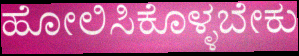
ಹೋಲಿಸಿಕೊಳ್ಳಬೇಕು